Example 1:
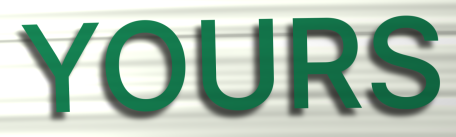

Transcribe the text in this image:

YOURS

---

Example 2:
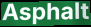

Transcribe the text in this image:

Asphalt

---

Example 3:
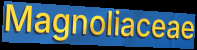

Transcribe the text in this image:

Magnoliaceae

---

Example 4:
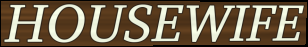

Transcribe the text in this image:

HOUSEWIFE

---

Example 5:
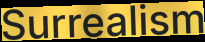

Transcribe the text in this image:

Surrealism